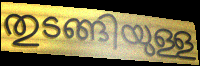
തുടങ്ങിയുള്ള